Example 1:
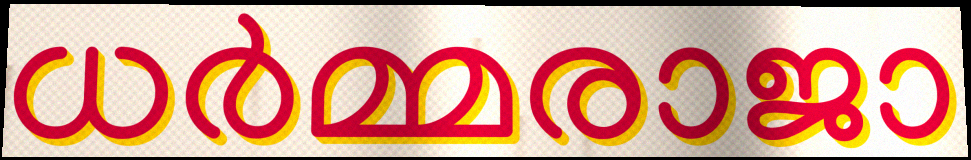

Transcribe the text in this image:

ധർമ്മരാജാ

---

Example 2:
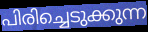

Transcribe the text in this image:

പിരിച്ചെടുക്കുന്ന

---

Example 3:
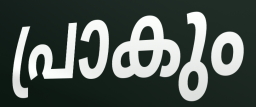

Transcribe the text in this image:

പ്രാകും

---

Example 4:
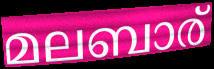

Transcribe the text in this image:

മലബാര്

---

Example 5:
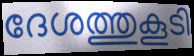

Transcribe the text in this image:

ദേശത്തുകൂടി